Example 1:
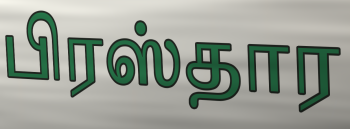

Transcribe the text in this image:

பிரஸ்தார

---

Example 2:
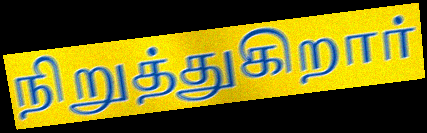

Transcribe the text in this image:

நிறுத்துகிறார்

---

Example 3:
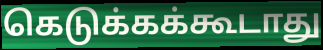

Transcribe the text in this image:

கெடுக்கக்கூடாது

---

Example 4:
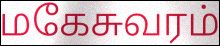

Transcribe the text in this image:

மகேசுவரம்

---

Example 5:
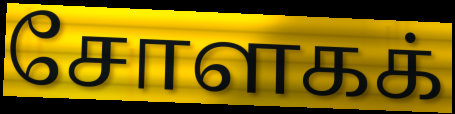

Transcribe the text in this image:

சோளகக்